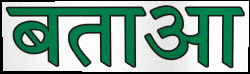
बताआ